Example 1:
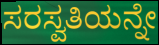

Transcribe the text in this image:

ಸರಸ್ವತಿಯನ್ನೇ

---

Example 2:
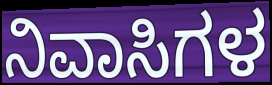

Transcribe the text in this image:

ನಿವಾಸಿಗಳ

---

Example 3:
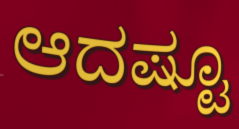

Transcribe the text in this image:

ಆದಷ್ಟೂ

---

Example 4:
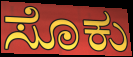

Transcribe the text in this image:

ಸೊಕು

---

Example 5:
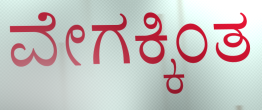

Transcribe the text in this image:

ವೇಗಕ್ಕಿಂತ